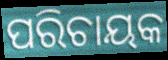
ପରିଚାୟକ